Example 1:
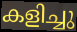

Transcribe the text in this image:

കളിച്ചു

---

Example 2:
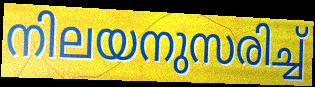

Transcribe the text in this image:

നിലയനുസരിച്ച്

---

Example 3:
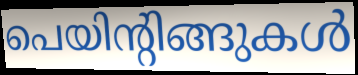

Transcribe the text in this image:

പെയിന്റിങ്ങുകൾ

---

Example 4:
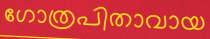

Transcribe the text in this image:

ഗോത്രപിതാവായ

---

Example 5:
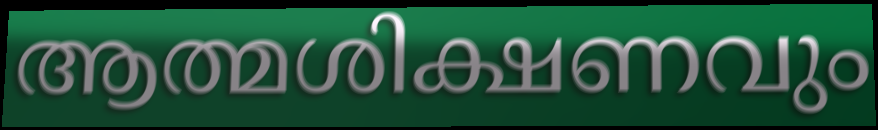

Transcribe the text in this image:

ആത്മശിക്ഷണവും